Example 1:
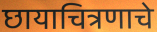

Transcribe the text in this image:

छायाचित्रणाचे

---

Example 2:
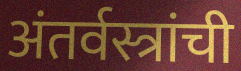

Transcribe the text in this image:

अंतर्वस्त्रांची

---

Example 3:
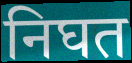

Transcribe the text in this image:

निघत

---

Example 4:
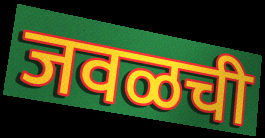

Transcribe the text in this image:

जवळची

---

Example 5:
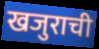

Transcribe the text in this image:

खजुराची